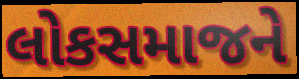
લોકસમાજને